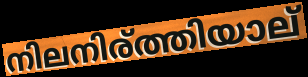
നിലനിര്ത്തിയാല്